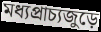
মধ্যপ্রাচ্যজুড়ে